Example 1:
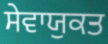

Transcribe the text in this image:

ਸੇਵਾਯੁਕਤ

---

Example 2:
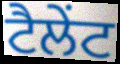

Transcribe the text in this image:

ਟੈਲੇੰਟ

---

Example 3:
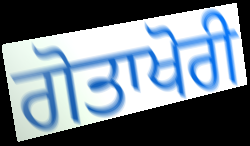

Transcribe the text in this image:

ਗੋਤਾਖੋਰੀ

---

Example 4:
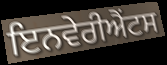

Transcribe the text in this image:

ਇਨਵੇਰੀਐਂਟਸ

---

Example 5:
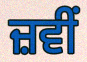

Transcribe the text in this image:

ਜ਼ਵੀਂ